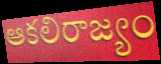
ఆకలిరాజ్యం